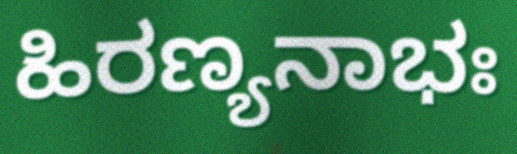
ಹಿರಣ್ಯನಾಭಃ